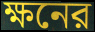
ক্ষনের